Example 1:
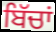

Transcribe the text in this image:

ਬਿੱਚਾਂ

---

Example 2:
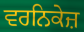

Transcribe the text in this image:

ਵਰਨਿਕੇਜ਼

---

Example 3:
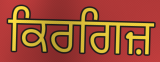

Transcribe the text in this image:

ਕਿਰਗਿਜ਼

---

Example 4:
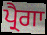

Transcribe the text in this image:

ਪ੍ਰੈਗਾ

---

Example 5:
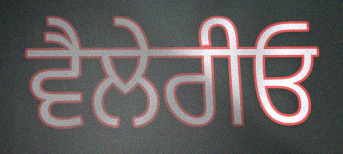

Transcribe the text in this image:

ਵੈਲੇਰੀਓ